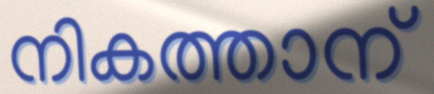
നികത്താന്